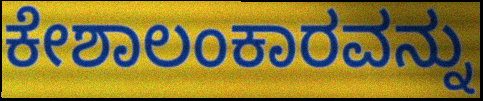
ಕೇಶಾಲಂಕಾರವನ್ನು